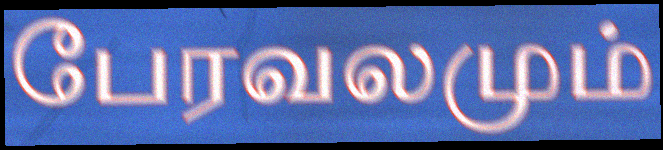
பேரவலமும்